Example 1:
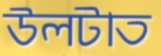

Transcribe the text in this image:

উলটাত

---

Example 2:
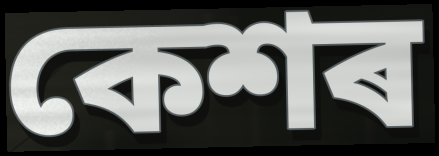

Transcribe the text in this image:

কেশৰ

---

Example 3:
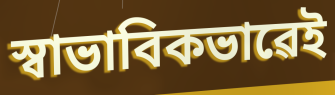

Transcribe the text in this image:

স্বাভাবিকভাৱেই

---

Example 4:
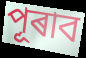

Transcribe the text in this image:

পূৰাব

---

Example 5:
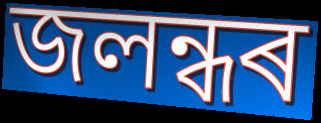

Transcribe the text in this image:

জলন্ধৰ